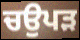
ਚਉਪੜ